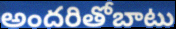
అందరితోబాటు